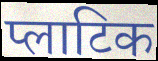
प्लाटिक